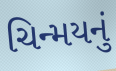
ચિન્મયનું